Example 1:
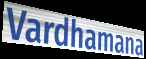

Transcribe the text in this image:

Vardhamana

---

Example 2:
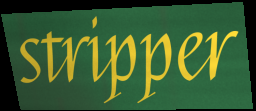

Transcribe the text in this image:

stripper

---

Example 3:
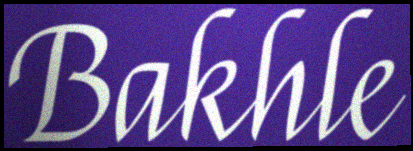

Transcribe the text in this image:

Bakhle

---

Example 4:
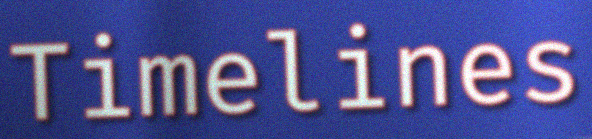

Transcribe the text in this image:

Timelines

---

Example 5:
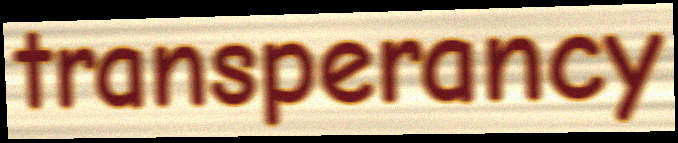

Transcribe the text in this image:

transperancy